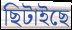
ছিটাইছে